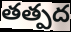
తత్పద